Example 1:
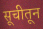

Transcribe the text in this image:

सूचीतून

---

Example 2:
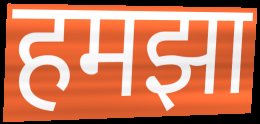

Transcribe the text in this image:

हमझा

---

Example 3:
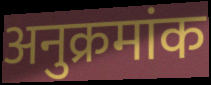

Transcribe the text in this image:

अनुक्रमांक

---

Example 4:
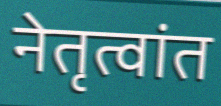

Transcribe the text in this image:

नेतृत्वांत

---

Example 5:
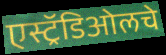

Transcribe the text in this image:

एस्ट्रॅडिओलचे